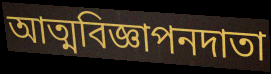
আত্মবিজ্ঞাপনদাতা